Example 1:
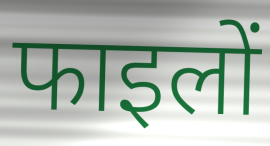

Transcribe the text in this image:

फाइलों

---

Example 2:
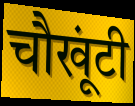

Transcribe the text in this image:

चौखूंटी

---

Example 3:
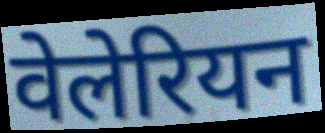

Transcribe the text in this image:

वेलेरियन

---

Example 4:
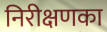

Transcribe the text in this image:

निरीक्षणका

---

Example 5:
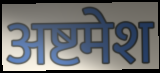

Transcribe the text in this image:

अष्टमेश